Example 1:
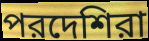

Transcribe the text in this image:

পরদেশিরা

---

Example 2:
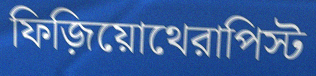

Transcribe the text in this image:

ফিজ়িয়োথেরাপিস্ট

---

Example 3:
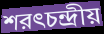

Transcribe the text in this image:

শরৎচন্দ্রীয়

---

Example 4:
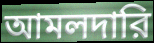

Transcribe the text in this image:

আমলদারি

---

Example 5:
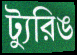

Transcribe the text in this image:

ট্যুরিঙ